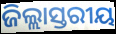
ଜିଲ୍ଲାସ୍ତରୀୟ